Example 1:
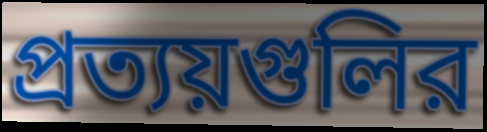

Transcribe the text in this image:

প্রত্যয়গুলির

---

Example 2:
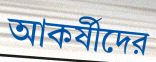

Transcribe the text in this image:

আকর্ষীদের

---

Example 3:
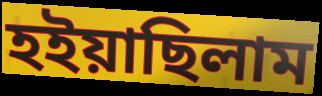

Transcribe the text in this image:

হইয়াছিলাম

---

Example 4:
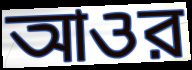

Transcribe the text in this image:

আওর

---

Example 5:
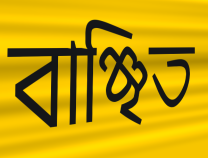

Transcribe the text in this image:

বাঞ্ছিত